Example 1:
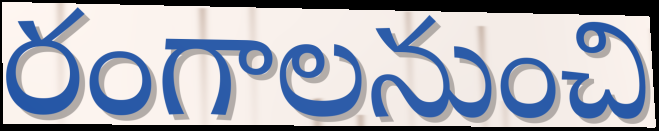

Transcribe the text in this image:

రంగాలనుంచి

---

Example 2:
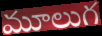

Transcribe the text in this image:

మూలుగ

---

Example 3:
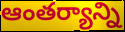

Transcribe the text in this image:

ఆంతర్యాన్ని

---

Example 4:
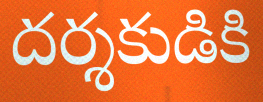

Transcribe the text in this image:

దర్శకుడికి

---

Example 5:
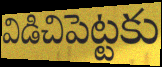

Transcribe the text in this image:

విడిచిపెట్టకు